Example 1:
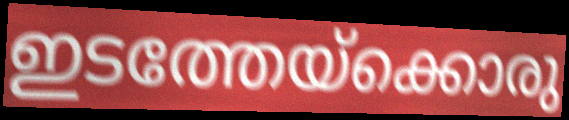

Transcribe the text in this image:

ഇടത്തേയ്ക്കൊരു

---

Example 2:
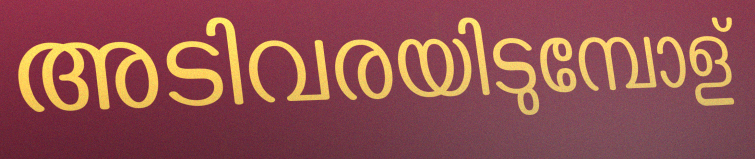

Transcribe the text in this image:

അടിവരയിടുമ്പോള്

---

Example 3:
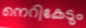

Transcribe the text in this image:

നെറികേടും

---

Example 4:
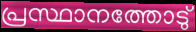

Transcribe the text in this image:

പ്രസ്ഥാനത്തോടു്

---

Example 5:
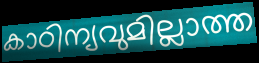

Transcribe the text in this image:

കാഠിന്യവുമില്ലാത്ത